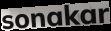
sonakar